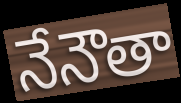
నేనౌతా